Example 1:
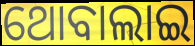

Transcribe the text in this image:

ଥୋବାଲାଇ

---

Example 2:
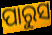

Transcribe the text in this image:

ପାରୁସ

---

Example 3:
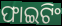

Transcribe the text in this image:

ଫାଇଟିଂ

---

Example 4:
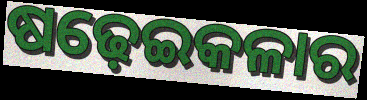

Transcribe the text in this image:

ଷଢ଼େଇକଳାର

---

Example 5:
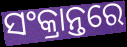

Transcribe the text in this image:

ସଂକ୍ରାନ୍ତରେ